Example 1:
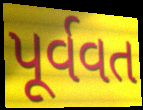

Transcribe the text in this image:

પૂર્વવત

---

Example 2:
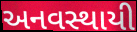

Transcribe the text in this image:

અનવસ્થાયી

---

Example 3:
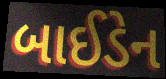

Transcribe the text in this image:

બાઈડેન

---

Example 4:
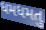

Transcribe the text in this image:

ધમધમતુ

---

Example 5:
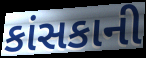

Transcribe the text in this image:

કાંસકાની